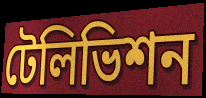
টেলিভিশন